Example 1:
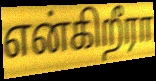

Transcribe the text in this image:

என்கிறீரா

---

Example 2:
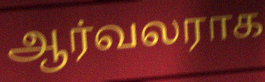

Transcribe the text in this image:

ஆர்வலராக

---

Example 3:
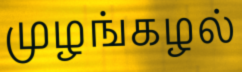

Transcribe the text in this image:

முழங்கழல்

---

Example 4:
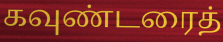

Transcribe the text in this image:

கவுண்டரைத்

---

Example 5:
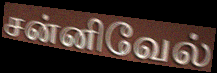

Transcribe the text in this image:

சன்னிவேல்